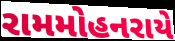
રામમોહનરાયે